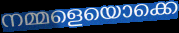
നമ്മളെയൊക്കെ